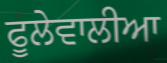
ਫੂਲੇਵਾਲੀਆ